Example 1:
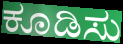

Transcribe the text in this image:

ಕೂಡಿಸು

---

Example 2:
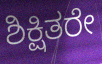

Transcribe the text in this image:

ಶಿಕ್ಷಿತರೇ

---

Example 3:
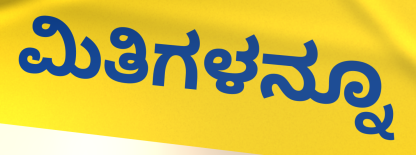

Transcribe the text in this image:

ಮಿತಿಗಳನ್ನೂ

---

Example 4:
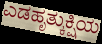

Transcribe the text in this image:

ಎಡಹೃತ್ಕುಕ್ಷಿಯ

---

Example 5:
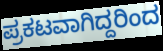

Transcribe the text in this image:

ಪ್ರಕಟವಾಗಿದ್ದರಿಂದ